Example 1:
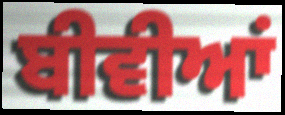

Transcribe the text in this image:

ਬੀਵੀਆਂ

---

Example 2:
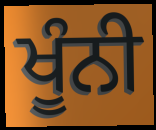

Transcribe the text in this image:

ਖੂੰਨੀ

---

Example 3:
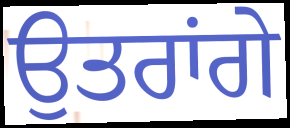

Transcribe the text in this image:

ਉਤਰਾਂਗੇ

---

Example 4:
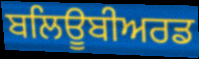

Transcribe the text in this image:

ਬਲਿਊਬੀਅਰਡ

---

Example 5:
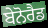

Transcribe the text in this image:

ਬੇਨੋਰੈਡ